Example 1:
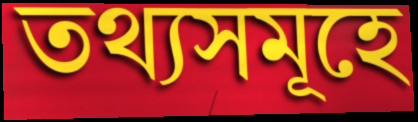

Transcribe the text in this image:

তথ্যসমূহে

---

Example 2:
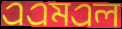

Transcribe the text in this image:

এএমএল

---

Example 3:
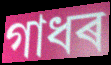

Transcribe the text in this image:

গাধৰ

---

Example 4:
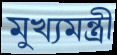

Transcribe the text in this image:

মুখ্যমন্ত্ৰী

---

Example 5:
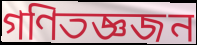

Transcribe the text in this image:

গণিতজ্ঞজন